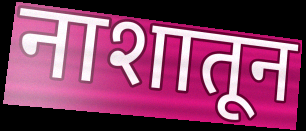
नाशातून